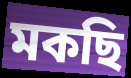
মকছি